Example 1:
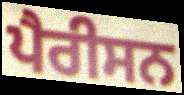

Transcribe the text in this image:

ਪੈਰੀਸਨ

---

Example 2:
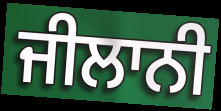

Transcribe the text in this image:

ਜੀਲਾਨੀ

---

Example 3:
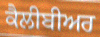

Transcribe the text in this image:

ਕੈਲੀਬੀਅਰ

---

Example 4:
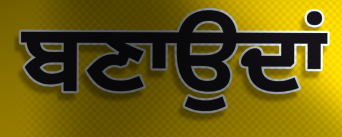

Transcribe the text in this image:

ਬਣਾਉਦਾਂ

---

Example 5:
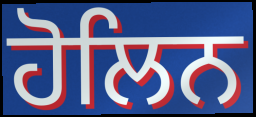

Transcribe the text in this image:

ਹੋਲਿਨ